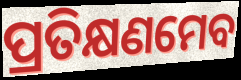
ପ୍ରତିକ୍ଷଣମେବ